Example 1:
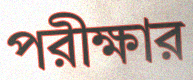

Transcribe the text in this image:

পরীক্ষার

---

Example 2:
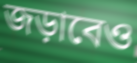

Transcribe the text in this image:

জড়াবেও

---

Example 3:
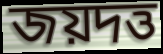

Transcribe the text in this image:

জয়দত্ত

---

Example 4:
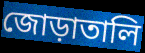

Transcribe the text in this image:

জোড়াতালি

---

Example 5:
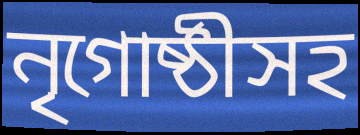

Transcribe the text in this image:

নৃগোষ্ঠীসহ